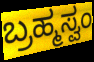
ಬ್ರಹ್ಮಸ್ವಂ